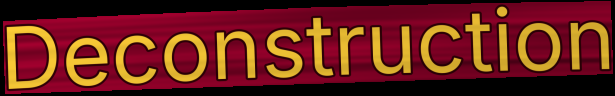
Deconstruction